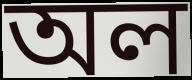
অল